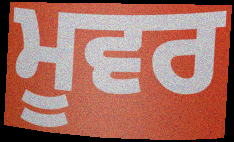
ਮੂਵਰ